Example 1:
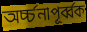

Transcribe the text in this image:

অর্চ্চনাপূর্ব্বক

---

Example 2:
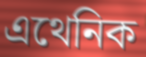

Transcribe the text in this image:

এথেনিক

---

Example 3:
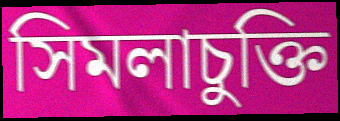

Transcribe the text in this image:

সিমলাচুক্তি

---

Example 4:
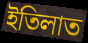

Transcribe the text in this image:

ইতিলাত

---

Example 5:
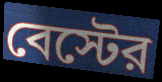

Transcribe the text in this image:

বেস্টের